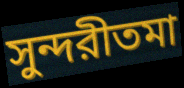
সুন্দরীতমা